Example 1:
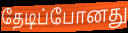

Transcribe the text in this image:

தேடிப்போனது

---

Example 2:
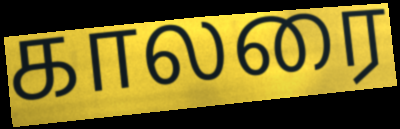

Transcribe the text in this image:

காலரை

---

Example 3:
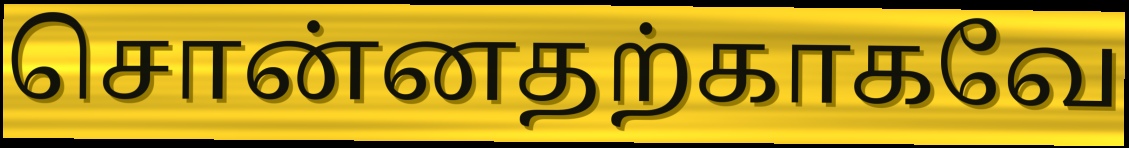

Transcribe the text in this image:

சொன்னதற்காகவே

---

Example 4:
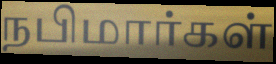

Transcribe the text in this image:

நபிமார்கள்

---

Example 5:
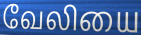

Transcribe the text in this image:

வேலியை